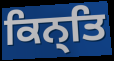
ਕਿਨ੍ਤਿ